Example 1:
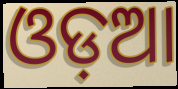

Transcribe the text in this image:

ଓଡ଼ଆ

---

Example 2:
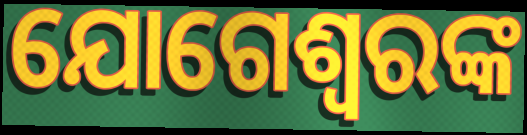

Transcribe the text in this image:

ଯୋଗେଶ୍ୱରଙ୍କ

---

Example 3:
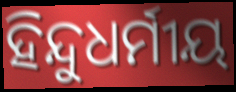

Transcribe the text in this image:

ହିନ୍ଦୁଧର୍ମୀୟ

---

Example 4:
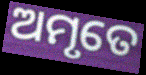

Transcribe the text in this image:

ଅମୃତେ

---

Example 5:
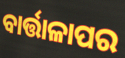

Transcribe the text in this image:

ବାର୍ତ୍ତାଳାପର